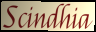
Scindhia